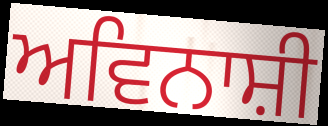
ਅਵਿਨਾਸ਼ੀ